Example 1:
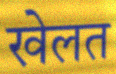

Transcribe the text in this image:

खेलत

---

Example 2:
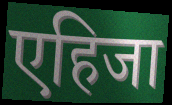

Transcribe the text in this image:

एहिजा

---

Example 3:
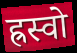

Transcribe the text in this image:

ह्रस्वो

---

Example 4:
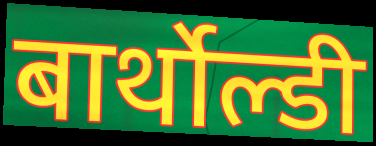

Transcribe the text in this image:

बार्थोल्डी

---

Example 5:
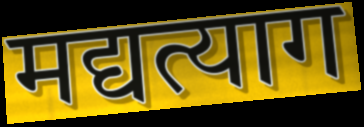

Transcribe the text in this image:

मद्यत्याग